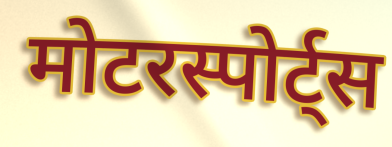
मोटरस्पोर्ट्स